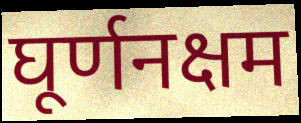
घूर्णनक्षम